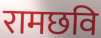
रामछवि